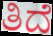
ತಿದೆ